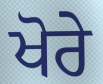
ਖੋਰੇ